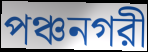
পঞ্চনগরী